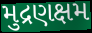
મુદ્રણક્ષમ